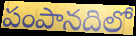
పంపానదిలో